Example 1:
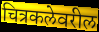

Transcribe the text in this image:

चित्रकलेवरील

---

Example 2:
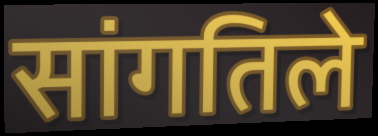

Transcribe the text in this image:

सांगतिले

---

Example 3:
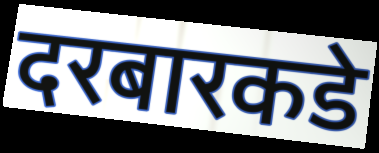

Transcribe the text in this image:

दरबारकडे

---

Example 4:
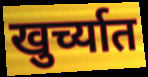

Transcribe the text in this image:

खुर्च्यात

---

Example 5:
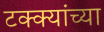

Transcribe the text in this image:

टक्क्यांच्या